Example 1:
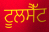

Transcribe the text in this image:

ਟੂਲਸੈੱਟ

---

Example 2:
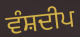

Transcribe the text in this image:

ਵੰਸ਼ਦੀਪ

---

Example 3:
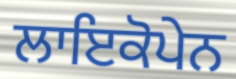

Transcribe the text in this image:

ਲਾਇਕੋਪੇਨ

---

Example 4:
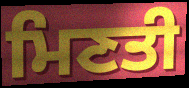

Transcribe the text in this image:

ਮਿਣਤੀ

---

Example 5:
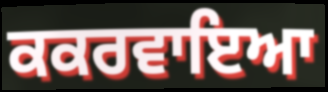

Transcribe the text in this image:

ਕਕਰਵਾਇਆ